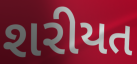
શરીયત